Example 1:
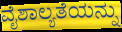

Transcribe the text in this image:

ವೈಶಾಲ್ಯತೆಯನ್ನು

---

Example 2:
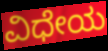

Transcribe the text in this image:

ವಿಧೇಯ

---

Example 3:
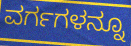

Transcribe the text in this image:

ವರ್ಗಗಳನ್ನೂ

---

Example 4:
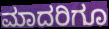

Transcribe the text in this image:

ಮಾದರಿಗೂ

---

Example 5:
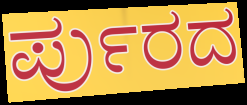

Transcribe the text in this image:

ರ್ಪುರದ